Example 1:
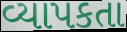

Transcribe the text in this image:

વ્યાપકતા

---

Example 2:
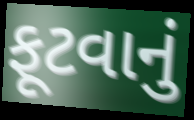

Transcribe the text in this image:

ફૂટવાનું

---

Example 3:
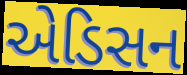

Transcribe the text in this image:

એડિસન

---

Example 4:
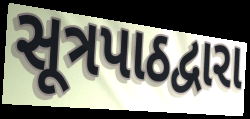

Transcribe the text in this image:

સૂત્રપાઠદ્વારા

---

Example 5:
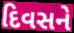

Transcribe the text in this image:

દિવસને